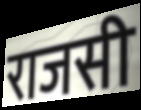
राजसी